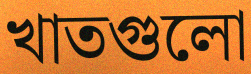
খাতগুলো